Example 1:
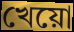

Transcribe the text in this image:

খেয়ো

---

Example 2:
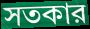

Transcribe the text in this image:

সতকার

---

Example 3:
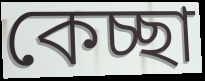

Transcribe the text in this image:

কেচ্ছা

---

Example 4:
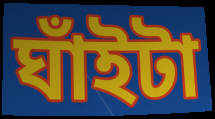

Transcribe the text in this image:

ঘাঁইটা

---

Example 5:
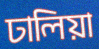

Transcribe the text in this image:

ঢালিয়া